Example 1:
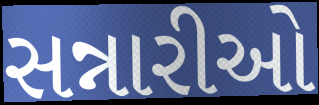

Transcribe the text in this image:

સન્નારીઓ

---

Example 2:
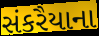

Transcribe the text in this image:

સંકરૈયાના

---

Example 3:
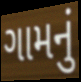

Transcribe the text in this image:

ગામનું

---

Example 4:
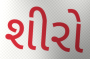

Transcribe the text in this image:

શીરો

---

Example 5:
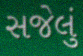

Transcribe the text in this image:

સજેલું